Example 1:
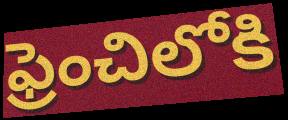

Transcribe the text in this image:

ఫ్రెంచిలోకి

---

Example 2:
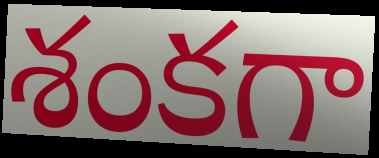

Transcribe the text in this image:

శంకగా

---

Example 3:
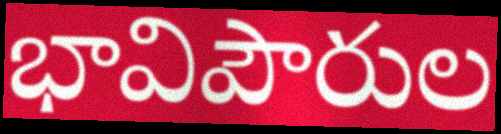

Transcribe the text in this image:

భావిపౌరుల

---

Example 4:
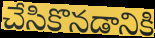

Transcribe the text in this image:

చేసికొనడానికి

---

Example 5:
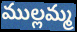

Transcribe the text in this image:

ముల్లమ్మ